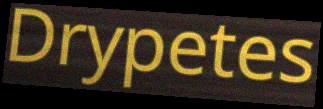
Drypetes